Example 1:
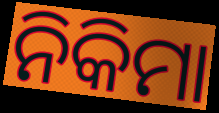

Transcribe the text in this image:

ନିକିମା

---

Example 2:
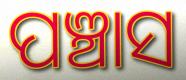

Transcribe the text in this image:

ପଞ୍ଚାସ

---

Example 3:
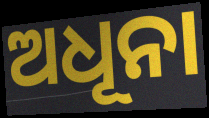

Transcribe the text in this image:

ଅଧୂନା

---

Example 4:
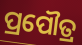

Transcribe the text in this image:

ପ୍ରପୌତ୍ର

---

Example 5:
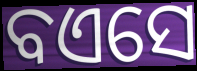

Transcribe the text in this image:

ବଏସେ